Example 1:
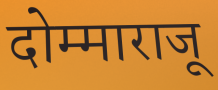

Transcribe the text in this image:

दोम्माराजू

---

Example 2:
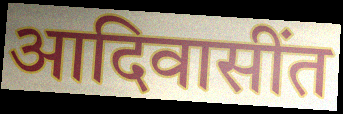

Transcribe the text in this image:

आदिवासींत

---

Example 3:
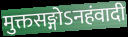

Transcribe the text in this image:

मुक्तसङ्गोऽनहंवादी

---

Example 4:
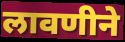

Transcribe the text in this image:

लावणीने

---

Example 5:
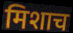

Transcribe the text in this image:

मिशाच